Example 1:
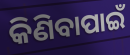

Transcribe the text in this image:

କିଣିବାପାଇଁ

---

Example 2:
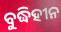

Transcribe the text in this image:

ବୁଦ୍ଧିହୀନ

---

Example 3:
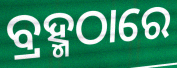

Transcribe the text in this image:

ବ୍ରହ୍ମଠାରେ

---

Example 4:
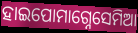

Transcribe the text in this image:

ହାଇପୋମାଗ୍ନେସେମିଆ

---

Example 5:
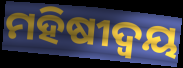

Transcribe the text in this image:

ମହିଷୀଦ୍ୱୟ